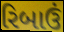
રિબાઉં